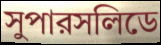
সুপারসলিডে